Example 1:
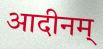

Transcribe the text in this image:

आदीनम्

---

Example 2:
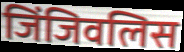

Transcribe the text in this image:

जिंजिवलिस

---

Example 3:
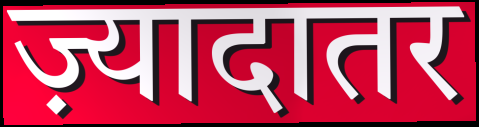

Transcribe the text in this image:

ज़्यादातर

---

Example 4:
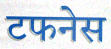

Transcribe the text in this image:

टफनेस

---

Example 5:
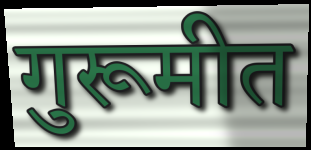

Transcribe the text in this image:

गुरूमीत